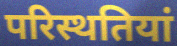
परिस्थतियां